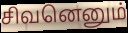
சிவனெனும்